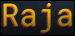
Raja